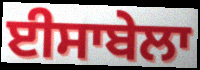
ਈਸਾਬੇਲਾ